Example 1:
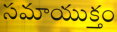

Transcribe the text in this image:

సమాయుక్తం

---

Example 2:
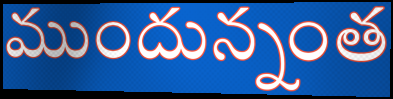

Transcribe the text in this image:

ముందున్నంత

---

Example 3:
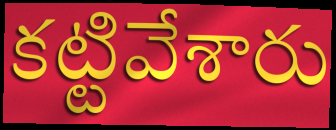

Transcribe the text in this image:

కట్టివేశారు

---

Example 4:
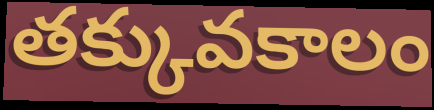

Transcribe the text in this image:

తక్కువకాలం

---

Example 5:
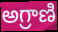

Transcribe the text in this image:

అగ్రాణి